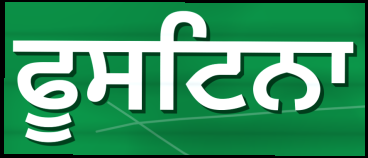
ਫੂਸਟਿਨਾ